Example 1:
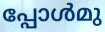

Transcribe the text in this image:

പ്പോൾമു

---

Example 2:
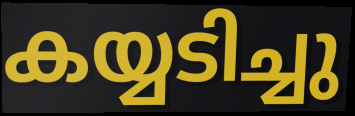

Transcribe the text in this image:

കയ്യടിച്ചു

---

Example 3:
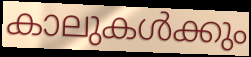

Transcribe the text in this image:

കാലുകൾക്കും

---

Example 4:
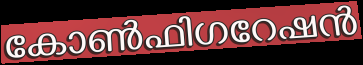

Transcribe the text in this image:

കോൺഫിഗറേഷൻ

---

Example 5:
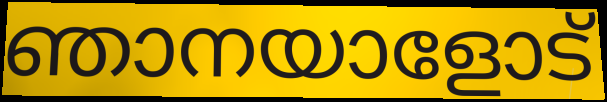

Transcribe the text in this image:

ഞാനയാളോട്